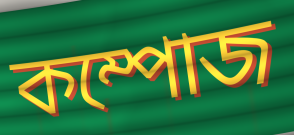
কম্পোজ